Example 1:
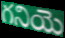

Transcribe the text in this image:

గనియె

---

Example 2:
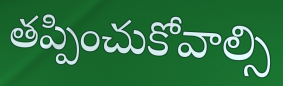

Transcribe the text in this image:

తప్పించుకోవాల్సి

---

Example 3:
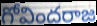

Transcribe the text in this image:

గోవిందరాజ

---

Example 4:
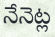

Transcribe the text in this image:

నేనెట్ల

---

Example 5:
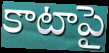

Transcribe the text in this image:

కాటాపై